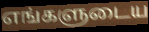
எங்களுடைய